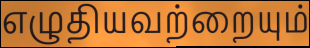
எழுதியவற்றையும்